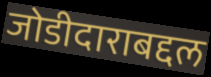
जोडीदाराबद्दल